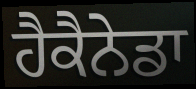
ਹੈਕੈਨੇਡਾ